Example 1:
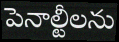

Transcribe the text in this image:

పెనాల్టీలను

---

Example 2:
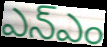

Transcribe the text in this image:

ఎన్ఎం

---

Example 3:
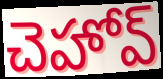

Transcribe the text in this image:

చెహోవ్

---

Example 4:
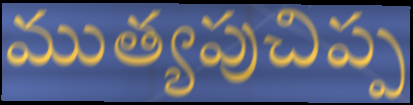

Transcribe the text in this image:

ముత్యపుచిప్ప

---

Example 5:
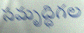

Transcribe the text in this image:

సమృద్ధిగల